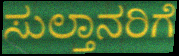
ಸುಲ್ತಾನರಿಗೆ